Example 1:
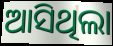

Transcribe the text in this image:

ଆସିଥିଲା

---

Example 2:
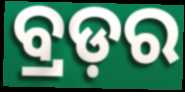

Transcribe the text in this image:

ବ୍ରଡ଼ର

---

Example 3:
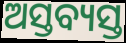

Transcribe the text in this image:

ଅସ୍ତବ୍ୟସ୍ତ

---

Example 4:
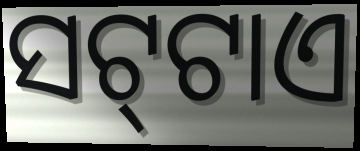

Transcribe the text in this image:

ସଟ୍‍ଟାଏ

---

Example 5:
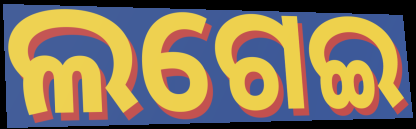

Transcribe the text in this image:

ଲଗେଇ